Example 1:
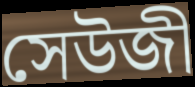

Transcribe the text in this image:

সেউজী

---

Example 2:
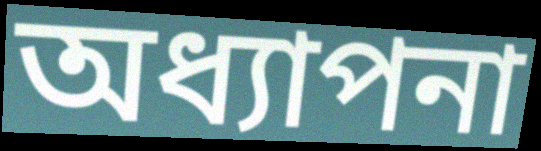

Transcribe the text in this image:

অধ্যাপনা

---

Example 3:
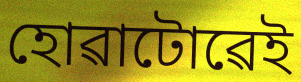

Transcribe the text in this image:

হোৱাটোৱেই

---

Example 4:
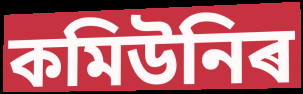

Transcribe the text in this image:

কমিউনিৰ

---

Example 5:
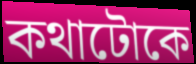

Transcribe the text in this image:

কথাটোকে